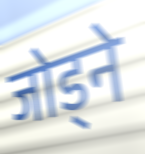
जोड्ने